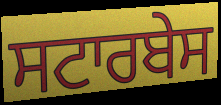
ਸਟਾਰਬੇਸ